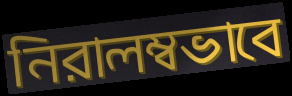
নিরালম্বভাবে